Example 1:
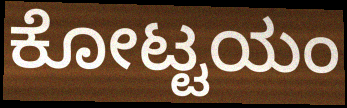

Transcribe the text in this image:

ಕೋಟ್ಟಯಂ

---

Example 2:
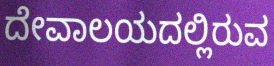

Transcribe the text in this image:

ದೇವಾಲಯದಲ್ಲಿರುವ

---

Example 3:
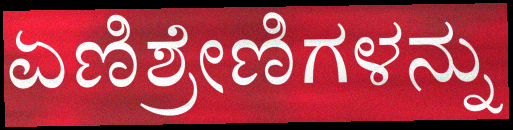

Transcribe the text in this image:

ಏಣಿಶ್ರೇಣಿಗಳನ್ನು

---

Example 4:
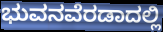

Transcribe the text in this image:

ಭುವನವೆರಡಾದಲ್ಲಿ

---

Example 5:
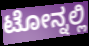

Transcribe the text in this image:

ಟೋನ್ನಲ್ಲಿ